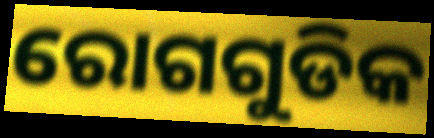
ରୋଗଗୁଡିକ